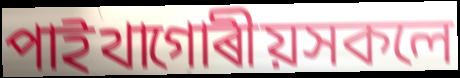
পাইথাগোৰীয়সকলে